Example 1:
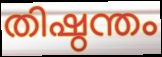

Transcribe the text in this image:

തിഷ്ഠന്തം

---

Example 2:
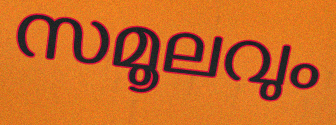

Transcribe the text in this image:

സമൂലവും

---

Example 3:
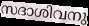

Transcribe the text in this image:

സദാശിവനു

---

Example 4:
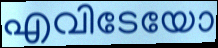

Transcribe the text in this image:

എവിടേയോ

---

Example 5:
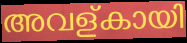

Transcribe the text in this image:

അവള്കായി